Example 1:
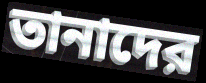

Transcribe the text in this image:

তানাদের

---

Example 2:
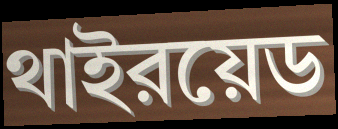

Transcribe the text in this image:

থাইরয়েড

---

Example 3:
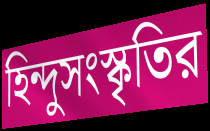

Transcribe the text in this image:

হিন্দুসংস্কৃতির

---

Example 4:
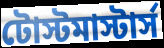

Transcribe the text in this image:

টোস্টমাস্টার্স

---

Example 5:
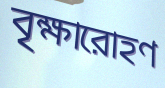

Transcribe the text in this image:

বৃক্ষারোহণ